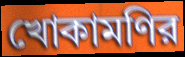
খোকামণির